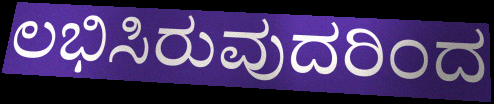
ಲಭಿಸಿರುವುದರಿಂದ